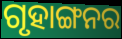
ଗୃହାଙ୍ଗନର